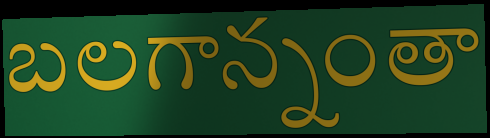
బలగాన్నంతా